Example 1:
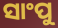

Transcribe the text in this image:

ସାଂପୁ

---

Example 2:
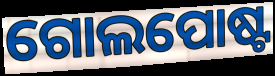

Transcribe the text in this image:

ଗୋଲପୋଷ୍ଟ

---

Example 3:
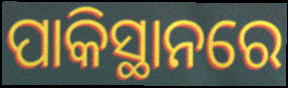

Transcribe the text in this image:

ପାକିସ୍ଥାନରେ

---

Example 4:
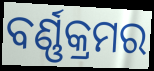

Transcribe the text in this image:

ବର୍ଣ୍ଣକ୍ରମର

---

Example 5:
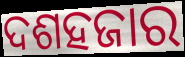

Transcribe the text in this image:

ଦଶହଜାର